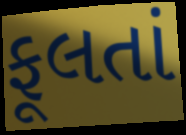
ફૂલતાં